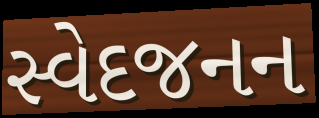
સ્વેદજનન